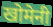
खोमेनी